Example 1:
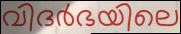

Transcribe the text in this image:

വിദർഭയിലെ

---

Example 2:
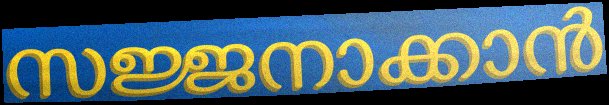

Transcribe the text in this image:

സജ്ജനാക്കാൻ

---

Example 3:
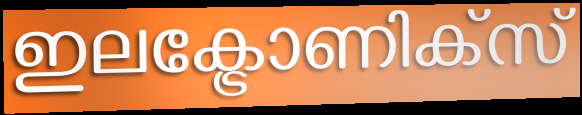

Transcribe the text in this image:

ഇലക്ട്രോണിക്‌സ്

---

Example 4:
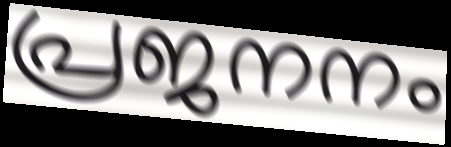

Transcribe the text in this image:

പ്രജനനം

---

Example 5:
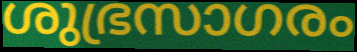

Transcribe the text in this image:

ശുഭ്രസാഗരം